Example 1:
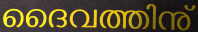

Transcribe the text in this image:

ദൈവത്തിനു്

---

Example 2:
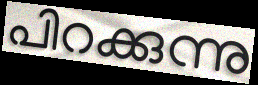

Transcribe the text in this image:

പിറക്കുന്നു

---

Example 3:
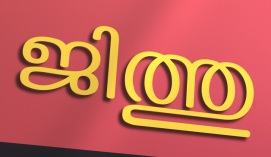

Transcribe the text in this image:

ജിത്തു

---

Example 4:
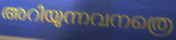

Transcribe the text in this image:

അറിയുന്നവനത്രെ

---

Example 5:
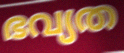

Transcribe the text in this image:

ഭവ്യത